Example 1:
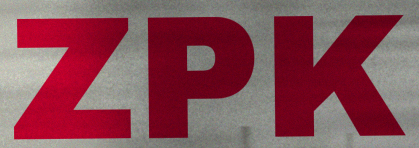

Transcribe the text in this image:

ZPK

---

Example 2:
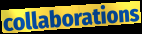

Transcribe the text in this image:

collaborations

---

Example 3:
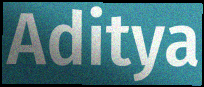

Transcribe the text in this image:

Aditya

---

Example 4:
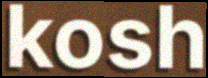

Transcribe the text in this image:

kosh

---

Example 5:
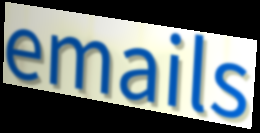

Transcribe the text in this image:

emails